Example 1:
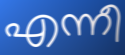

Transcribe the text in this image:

എന്നീ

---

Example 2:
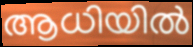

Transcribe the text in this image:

ആധിയിൽ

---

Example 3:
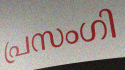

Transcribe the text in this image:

പ്രസംഗി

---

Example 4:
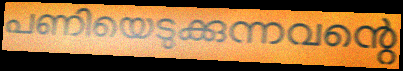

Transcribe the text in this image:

പണിയെടുക്കുന്നവന്റെ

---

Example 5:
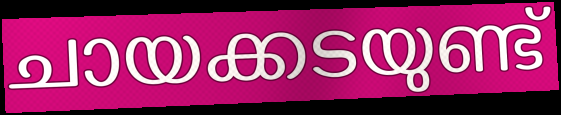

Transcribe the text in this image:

ചായക്കടയുണ്ട്